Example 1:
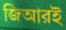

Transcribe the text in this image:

জিআরই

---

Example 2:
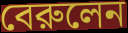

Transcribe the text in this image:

বেরুলেন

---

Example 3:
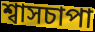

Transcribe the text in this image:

শ্বাসচাপা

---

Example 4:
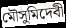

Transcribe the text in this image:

মৌসুমিদেবী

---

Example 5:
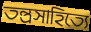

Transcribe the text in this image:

তন্ত্রসাহিত্যে